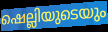
ഷെല്ലിയുടെയും